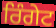
ਰਿੰਗੇਟ